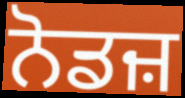
ਨੋਡਜ਼